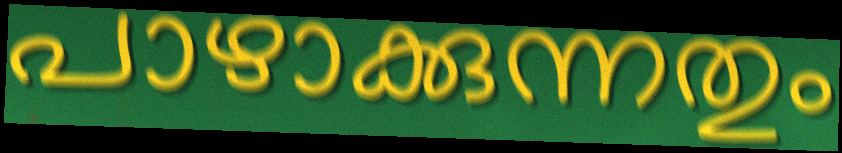
പാഴാക്കുന്നതും